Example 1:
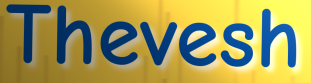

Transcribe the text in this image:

Thevesh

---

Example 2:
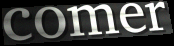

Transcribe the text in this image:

comer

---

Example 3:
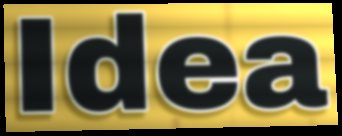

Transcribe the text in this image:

Idea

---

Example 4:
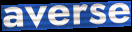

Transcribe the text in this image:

averse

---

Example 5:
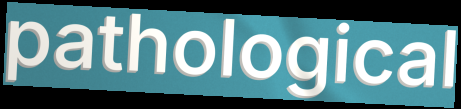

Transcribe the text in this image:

pathological